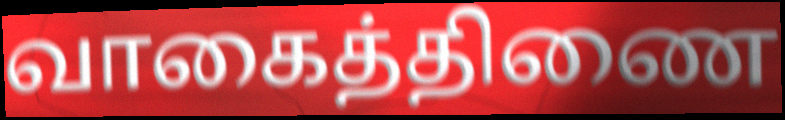
வாகைத்திணை